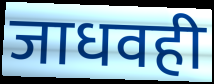
जाधवही